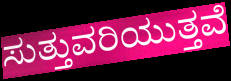
ಸುತ್ತುವರಿಯುತ್ತವೆ